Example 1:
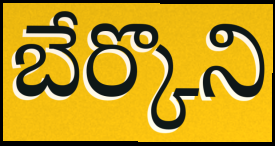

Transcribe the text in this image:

బేర్కొని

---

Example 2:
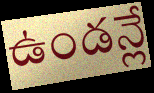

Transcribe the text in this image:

ఉండన్లే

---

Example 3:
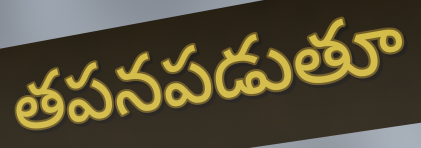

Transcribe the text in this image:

తపనపడుతూ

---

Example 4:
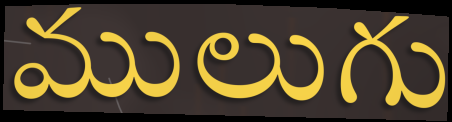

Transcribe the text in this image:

ములుగు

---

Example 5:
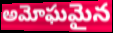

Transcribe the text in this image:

అమోఘమైన